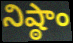
నిష్ఠాం